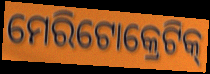
ମେରିଟୋକ୍ରେଟିକ୍